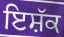
ਇਸ਼ੱਕ